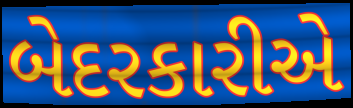
બેદરકારીએ